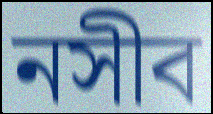
নসীব